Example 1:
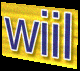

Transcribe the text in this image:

wiil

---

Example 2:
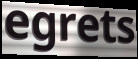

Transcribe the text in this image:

egrets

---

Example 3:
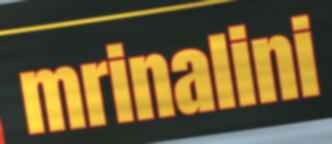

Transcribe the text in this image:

mrinalini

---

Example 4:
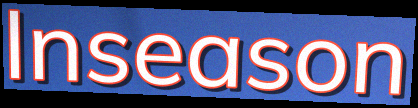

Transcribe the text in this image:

Inseason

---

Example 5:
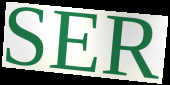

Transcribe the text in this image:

SER